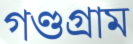
গণ্ডগ্রাম